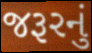
જરૂરનું